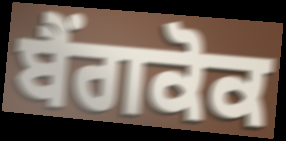
ਬੈਂਗਕੋਕ